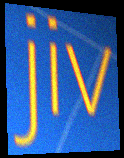
jiv